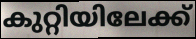
കുറ്റിയിലേക്ക്